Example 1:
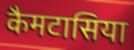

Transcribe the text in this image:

कैमटासिया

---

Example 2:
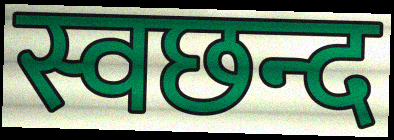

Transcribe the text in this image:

स्वछन्द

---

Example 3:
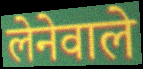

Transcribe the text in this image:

लेनेवाले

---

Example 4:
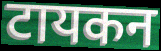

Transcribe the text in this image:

टायकन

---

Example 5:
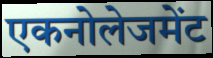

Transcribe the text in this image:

एकनोलेजमेंट